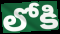
లోకి